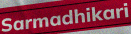
Sarmadhikari